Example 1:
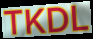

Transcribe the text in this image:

TKDL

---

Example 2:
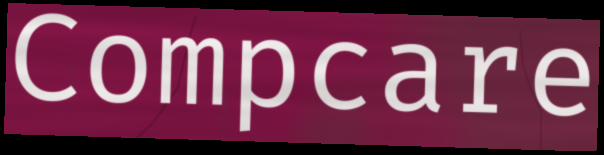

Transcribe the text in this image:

Compcare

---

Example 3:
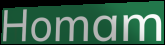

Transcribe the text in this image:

Homam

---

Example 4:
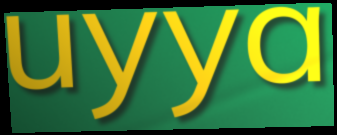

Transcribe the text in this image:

uyya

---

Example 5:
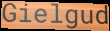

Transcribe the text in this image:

Gielgud